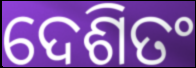
ଦେଶିତଂ